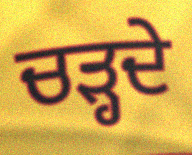
ਚਡ਼੍ਹਦੇ